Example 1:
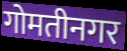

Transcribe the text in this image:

गोमतीनगर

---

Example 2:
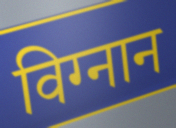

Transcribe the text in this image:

विग्नान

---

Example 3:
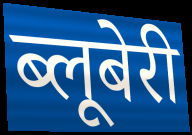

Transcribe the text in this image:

ब्लूबेरी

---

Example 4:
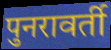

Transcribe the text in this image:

पुनरावर्ती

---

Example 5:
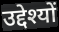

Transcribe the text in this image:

उद्देश्यों